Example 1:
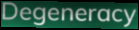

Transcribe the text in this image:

Degeneracy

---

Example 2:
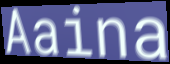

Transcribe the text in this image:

Aaina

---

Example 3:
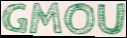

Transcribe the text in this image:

GMOU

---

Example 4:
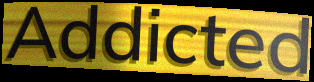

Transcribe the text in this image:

Addicted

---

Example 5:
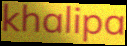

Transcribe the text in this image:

khalipa